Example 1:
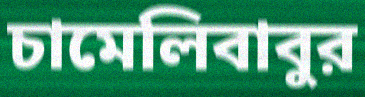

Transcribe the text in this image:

চামেলিবাবুর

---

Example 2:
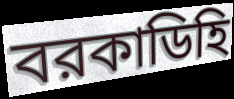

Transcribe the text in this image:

বরকাডিহি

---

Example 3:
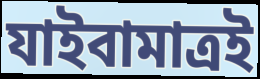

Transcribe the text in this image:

যাইবামাত্রই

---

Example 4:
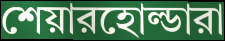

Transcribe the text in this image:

শেয়ারহোল্ডারা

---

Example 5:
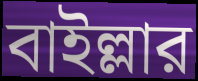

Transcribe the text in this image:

বাইল্লার